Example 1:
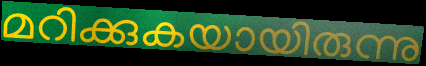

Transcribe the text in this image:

മറിക്കുകയായിരുന്നു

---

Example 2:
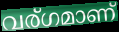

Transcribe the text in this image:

വര്ഗമാണ്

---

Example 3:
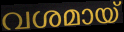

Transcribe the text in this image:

വശമായ്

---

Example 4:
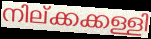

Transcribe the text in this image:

നില്ക്കക്കള്ളി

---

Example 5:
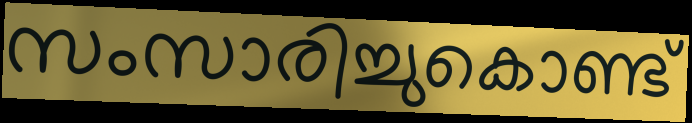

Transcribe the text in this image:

സംസാരിച്ചുകൊണ്ട്